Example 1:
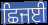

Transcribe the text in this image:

ਛਿਜਈ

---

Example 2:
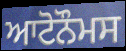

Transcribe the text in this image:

ਆਟੋਨੌਮਸ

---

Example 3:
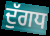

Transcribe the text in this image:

ਦੁੱਗਧ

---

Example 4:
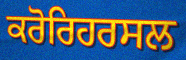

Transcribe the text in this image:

ਕਰੋਰਿਹਰਸਲ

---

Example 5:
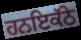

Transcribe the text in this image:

ਹਨਇਕੱਠੇ